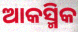
ଆକସ୍ମିକ